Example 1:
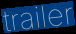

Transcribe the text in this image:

trailer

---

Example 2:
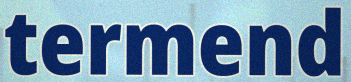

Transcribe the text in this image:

termend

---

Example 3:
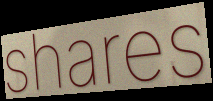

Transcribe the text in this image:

shares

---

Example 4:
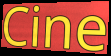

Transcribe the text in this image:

Cine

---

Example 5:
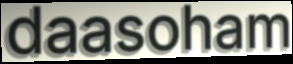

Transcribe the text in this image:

daasoham